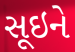
સૂઇને